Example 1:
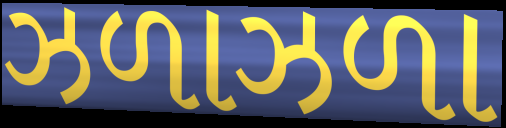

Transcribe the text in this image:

ઝળાઝળા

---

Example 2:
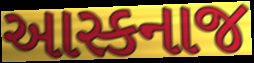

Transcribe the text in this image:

આસ્કનાજ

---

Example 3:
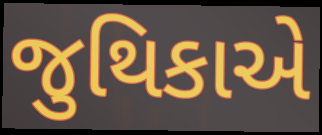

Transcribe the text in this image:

જુથિકાએ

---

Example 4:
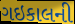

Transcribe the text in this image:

ગઇકાલની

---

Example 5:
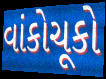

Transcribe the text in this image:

વાંકોચૂકો